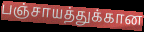
பஞ்சாயத்துக்கான